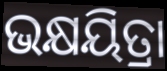
ଭକ୍ଷୟିତ୍ରା